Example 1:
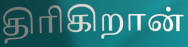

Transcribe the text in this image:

திரிகிறான்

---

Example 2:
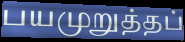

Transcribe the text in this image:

பயமுறுத்தப்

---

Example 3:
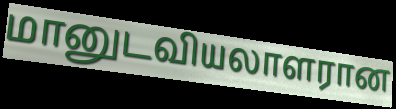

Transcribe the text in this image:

மானுடவியலாளரான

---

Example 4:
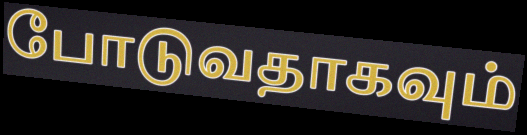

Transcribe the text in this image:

போடுவதாகவும்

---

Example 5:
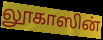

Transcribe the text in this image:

லூகாஸின்